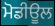
ਮੋਡੀਊਲ